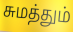
சுமத்தும்